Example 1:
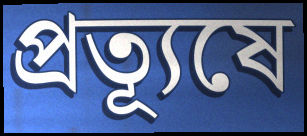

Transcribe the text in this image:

প্রত্যূষে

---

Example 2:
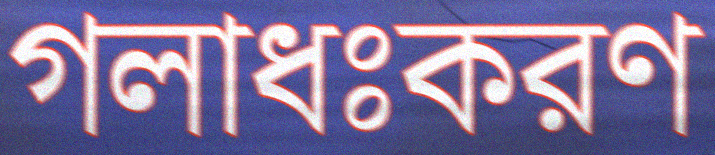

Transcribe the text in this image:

গলাধঃকরণ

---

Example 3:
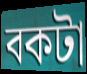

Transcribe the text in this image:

বকটা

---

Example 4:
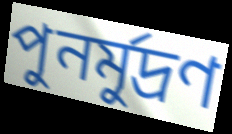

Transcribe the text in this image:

পুনর্মুদ্রণ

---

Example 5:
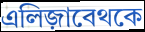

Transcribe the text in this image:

এলিজ়াবেথকে